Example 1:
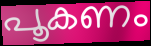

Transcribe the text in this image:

പൂകണം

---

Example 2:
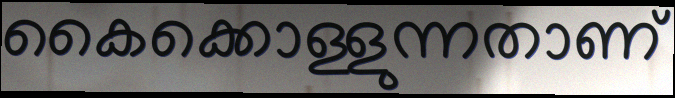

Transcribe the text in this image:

കൈക്കൊള്ളുന്നതാണ്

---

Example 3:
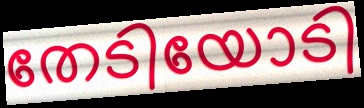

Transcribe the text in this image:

തേടിയോടി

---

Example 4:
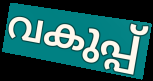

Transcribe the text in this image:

വകുപ്പ്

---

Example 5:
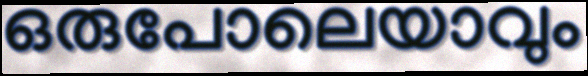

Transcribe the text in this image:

ഒരുപോലെയാവും